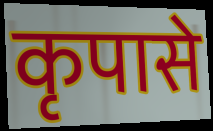
कृपासे